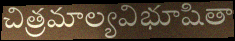
చిత్రమాల్యవిభూషితా